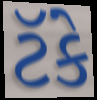
ટૅંકે